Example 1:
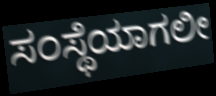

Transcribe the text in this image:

ಸಂಸ್ಥೆಯಾಗಲೀ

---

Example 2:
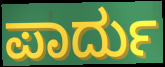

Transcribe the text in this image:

ಪಾರ್ದು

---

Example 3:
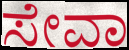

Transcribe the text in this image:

ಸೇವಾ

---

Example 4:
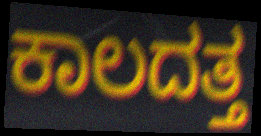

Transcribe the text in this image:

ಕಾಲದತ್ತ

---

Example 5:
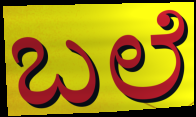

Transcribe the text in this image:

ಬಲೆ